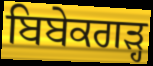
ਬਿਬੇਕਗੜ੍ਹ